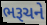
ભરૂચને